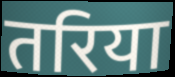
तरिया